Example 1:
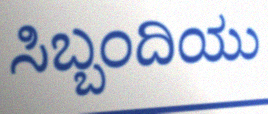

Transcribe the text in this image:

ಸಿಬ್ಬಂದಿಯು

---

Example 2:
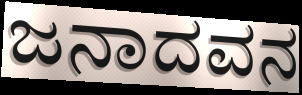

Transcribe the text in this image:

ಜನಾದವನ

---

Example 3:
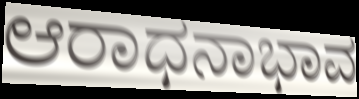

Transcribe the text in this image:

ಆರಾಧನಾಭಾವ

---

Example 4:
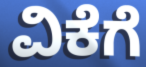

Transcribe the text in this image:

ವಿಕೆಗೆ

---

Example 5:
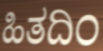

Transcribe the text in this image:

ಹಿತದಿಂ